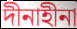
দীনাহীনা